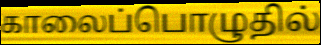
காலைப்பொழுதில்